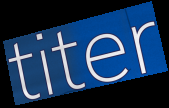
titer